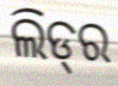
ଲିଡ୍‌ର